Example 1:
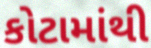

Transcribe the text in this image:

કોટામાંથી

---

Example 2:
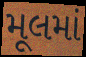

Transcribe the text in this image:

મૂલમાં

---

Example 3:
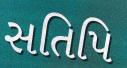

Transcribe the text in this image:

સતિપિ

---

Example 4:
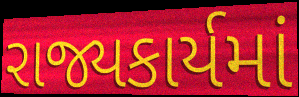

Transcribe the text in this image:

રાજ્યકાર્યમાં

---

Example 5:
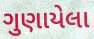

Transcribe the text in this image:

ગુણાયેલા